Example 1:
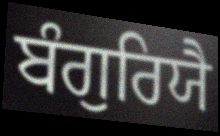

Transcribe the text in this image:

ਬੰਗੁਰਿਯੈ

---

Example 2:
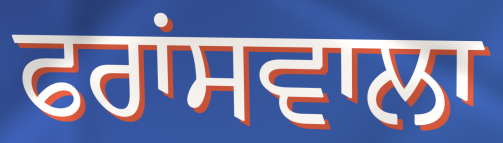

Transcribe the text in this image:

ਫਰਾਂਸਵਾਲਾ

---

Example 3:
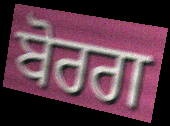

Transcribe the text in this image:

ਬੋਰਗ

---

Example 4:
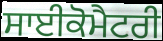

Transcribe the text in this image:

ਸਾਈਕੋਮੈਟਰੀ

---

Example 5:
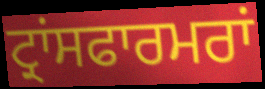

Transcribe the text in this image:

ਟ੍ਰਾਂਸਫਾਰਮਰਾਂ